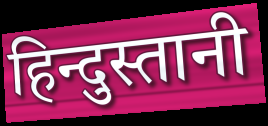
हिन्दुस्तानी